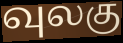
வுலகு